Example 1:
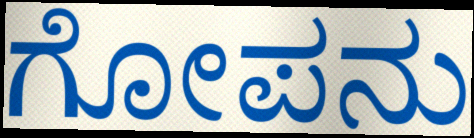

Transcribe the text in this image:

ಗೋಪನು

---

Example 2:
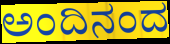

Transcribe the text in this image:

ಅಂದಿನಂದ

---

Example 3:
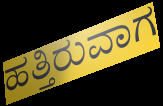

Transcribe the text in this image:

ಹತ್ತಿರುವಾಗ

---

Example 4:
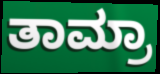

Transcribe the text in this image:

ತಾಮ್ರಾ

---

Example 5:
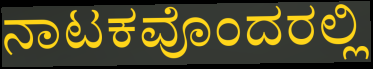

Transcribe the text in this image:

ನಾಟಕವೊಂದರಲ್ಲಿ